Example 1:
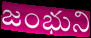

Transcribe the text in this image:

జంభుని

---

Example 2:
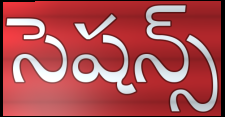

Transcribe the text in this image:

సెషన్స్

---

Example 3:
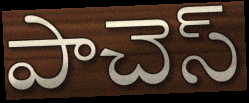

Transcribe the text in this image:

పాచెస్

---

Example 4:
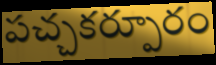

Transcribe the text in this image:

పచ్చకర్పూరం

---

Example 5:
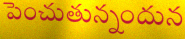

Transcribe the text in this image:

పెంచుతున్నందున